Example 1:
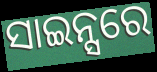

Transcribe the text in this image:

ସାଇନ୍ସରେ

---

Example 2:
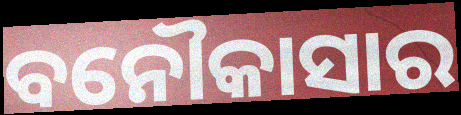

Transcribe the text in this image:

ବନୌକାସାର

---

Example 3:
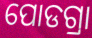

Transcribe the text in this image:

ପୋଡଗ୍ରା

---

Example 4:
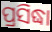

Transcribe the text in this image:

ପ୍ରସିଦ୍ଧା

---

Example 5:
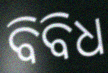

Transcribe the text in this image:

ବିବିଧ